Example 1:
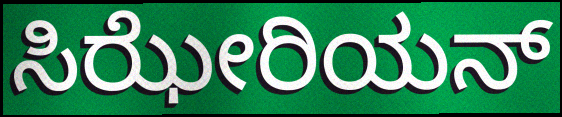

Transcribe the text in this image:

ಸಿಝೇರಿಯನ್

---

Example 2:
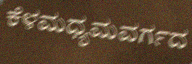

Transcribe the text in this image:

ಕೆಳಮಧ್ಯಮವರ್ಗದ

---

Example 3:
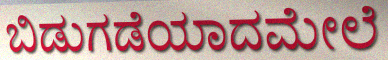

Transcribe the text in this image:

ಬಿಡುಗಡೆಯಾದಮೇಲೆ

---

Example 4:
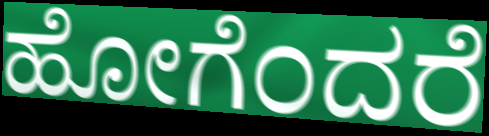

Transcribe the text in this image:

ಹೋಗೆಂದರೆ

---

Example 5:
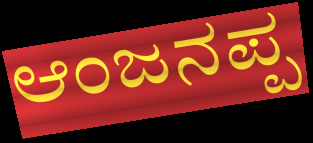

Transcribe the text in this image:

ಆಂಜನಪ್ಪ